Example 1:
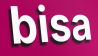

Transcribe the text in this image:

bisa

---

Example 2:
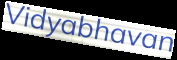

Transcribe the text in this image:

Vidyabhavan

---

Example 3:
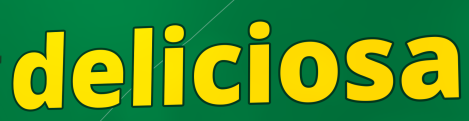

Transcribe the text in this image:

deliciosa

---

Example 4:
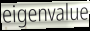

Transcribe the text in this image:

eigenvalue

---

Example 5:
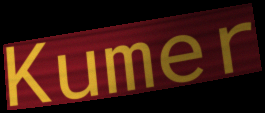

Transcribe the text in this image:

Kumer